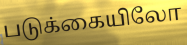
படுக்கையிலோ